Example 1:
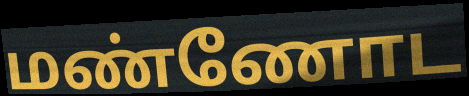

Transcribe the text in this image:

மண்ணோட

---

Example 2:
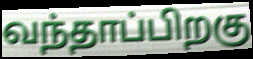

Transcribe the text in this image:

வந்தாப்பிறகு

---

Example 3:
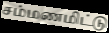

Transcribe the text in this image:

சம்மணமிட்டு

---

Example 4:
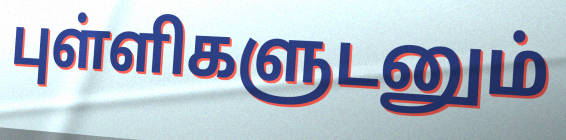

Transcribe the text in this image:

புள்ளிகளுடனும்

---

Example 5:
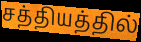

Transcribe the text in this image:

சத்தியத்தில்